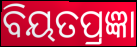
ବିୟତପ୍ରଜ୍ଞା